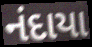
નંદાયા